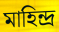
মাহিন্দ্র